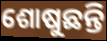
ଶୋଷୁଛନ୍ତି